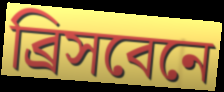
ব্রিসবেনে